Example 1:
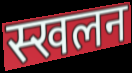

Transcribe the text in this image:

स्खलन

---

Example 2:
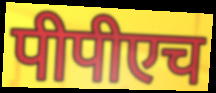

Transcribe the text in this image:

पीपीएच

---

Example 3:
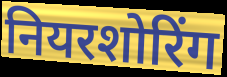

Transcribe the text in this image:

नियरशोरिंग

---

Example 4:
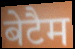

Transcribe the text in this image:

बेटैम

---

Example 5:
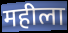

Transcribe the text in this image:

महीला